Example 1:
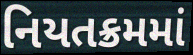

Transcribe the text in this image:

નિયતક્રમમાં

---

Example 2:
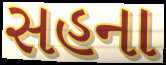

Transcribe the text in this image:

સહના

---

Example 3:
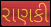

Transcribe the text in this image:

રાણકી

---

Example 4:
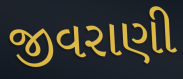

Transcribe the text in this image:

જીવરાણી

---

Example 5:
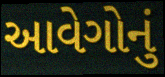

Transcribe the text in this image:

આવેગોનું